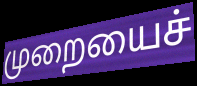
முறையைச்